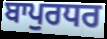
ਬਾਪੁਰਧਰ